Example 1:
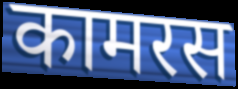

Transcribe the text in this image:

कामरस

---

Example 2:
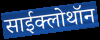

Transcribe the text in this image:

साईक्लोथॉन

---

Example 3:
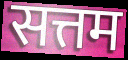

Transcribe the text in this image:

सत्तम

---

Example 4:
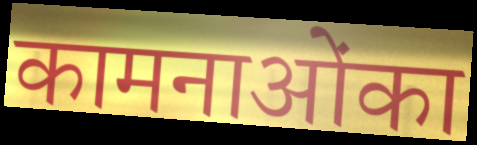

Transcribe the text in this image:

कामनाओंका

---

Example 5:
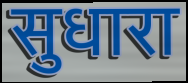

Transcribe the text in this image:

सुधारा